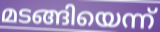
മടങ്ങിയെന്ന്